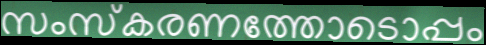
സംസ്കരണത്തോടൊപ്പം